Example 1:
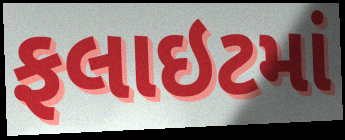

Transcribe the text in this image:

ફલાઇટમાં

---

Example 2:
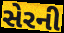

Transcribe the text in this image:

સેરની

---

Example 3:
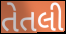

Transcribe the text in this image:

તેતલી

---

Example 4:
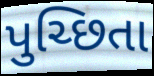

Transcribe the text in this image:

પુચ્છિતા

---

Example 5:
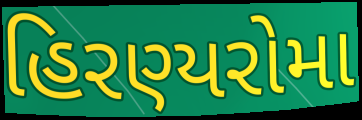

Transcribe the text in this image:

હિરણ્યરોમા